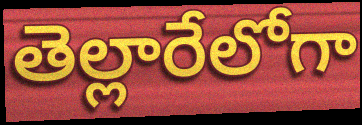
తెల్లారేలోగా